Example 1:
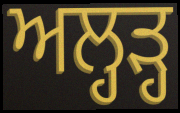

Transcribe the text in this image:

ਅਲ੍ਹੜ੍ਹ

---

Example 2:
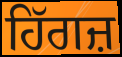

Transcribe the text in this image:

ਹਿੱਗਜ਼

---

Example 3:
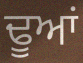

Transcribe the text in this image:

ਢੂਆਂ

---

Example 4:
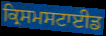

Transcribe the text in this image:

ਕ੍ਰਿਸਮਸਟਾਈਡ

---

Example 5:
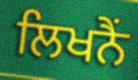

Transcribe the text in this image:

ਲਿਖਨੈਂ